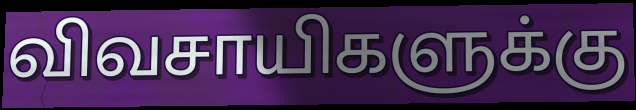
விவசாயிகளுக்கு